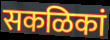
सकळिकां